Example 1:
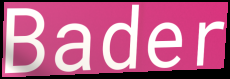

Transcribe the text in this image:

Bader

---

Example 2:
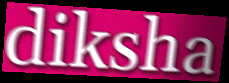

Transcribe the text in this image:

diksha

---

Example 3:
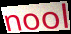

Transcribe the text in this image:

nool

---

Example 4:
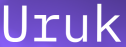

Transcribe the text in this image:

Uruk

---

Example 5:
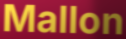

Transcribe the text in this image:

Mallon